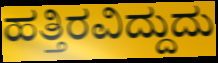
ಹತ್ತಿರವಿದ್ದುದು